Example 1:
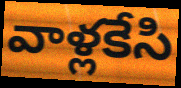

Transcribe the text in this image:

వాళ్లకేసి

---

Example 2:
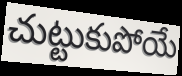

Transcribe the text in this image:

చుట్టుకుపోయే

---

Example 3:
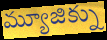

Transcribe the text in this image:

మ్యూజిక్ను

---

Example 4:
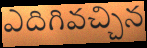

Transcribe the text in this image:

ఎదిగివచ్చిన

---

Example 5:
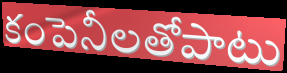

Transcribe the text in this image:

కంపెనీలతోపాటు